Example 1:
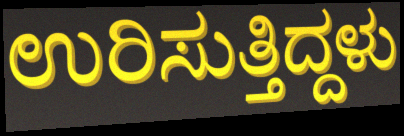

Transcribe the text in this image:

ಉರಿಸುತ್ತಿದ್ದಳು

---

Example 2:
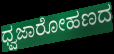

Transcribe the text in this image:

ಧ್ವಜಾರೋಹಣದ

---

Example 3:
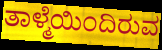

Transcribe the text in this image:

ತಾಳ್ಮೆಯಿಂದಿರುವ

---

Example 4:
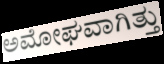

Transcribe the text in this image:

ಅಮೋಘವಾಗಿತ್ತು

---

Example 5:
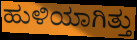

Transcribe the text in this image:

ಹುಳಿಯಾಗಿತ್ತು